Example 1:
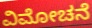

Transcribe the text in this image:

ವಿಮೋಚನೆ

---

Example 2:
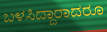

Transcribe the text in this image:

ಬಳಸಿದ್ದಾರಾದರೂ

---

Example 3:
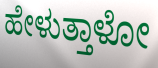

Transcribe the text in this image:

ಹೇಳುತ್ತಾಳೋ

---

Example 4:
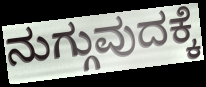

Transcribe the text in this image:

ನುಗ್ಗುವುದಕ್ಕೆ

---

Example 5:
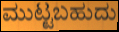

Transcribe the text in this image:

ಮುಟ್ಟಬಹುದು